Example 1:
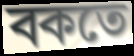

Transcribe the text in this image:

বকতে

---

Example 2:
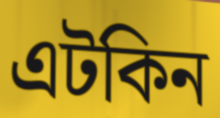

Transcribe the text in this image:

এটকিন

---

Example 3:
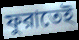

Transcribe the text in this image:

ফুরাতেই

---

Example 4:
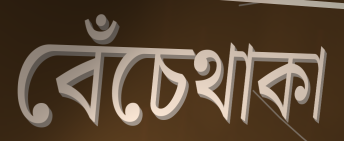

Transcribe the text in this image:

বেঁচেথাকা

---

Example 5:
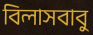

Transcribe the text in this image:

বিলাসবাবু